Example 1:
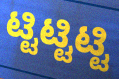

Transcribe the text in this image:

ಟ್ಟಿಟ್ಟಿಟ್ಟಿ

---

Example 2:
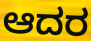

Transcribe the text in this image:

ಆದರ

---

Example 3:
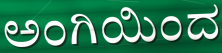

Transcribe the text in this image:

ಅಂಗಿಯಿಂದ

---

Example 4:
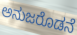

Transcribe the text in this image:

ಅನುಜರೊಡನೆ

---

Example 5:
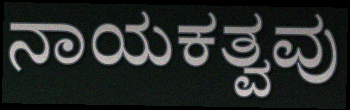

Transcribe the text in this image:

ನಾಯಕತ್ವವು